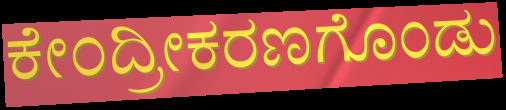
ಕೇಂದ್ರೀಕರಣಗೊಂಡು